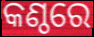
କଣ୍ଠରେ